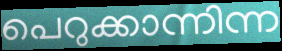
പെറുക്കാന്നിന്ന